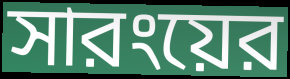
সারংয়ের